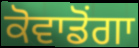
ਕੋਵਾਡੋਂਗਾ